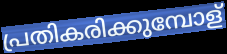
പ്രതികരിക്കുമ്പോള്